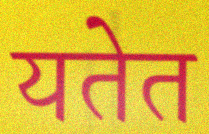
यतेत